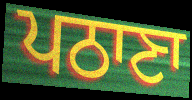
ਪਠਾਣਾ